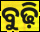
ବୁଢ଼ି